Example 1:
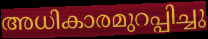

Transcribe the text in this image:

അധികാരമുറപ്പിച്ചു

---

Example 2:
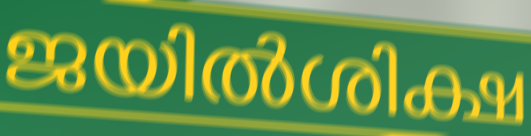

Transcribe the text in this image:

ജയിൽശിക്ഷ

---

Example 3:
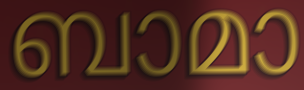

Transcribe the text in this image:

ബാമാ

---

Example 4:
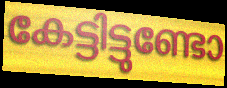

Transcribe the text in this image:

കേട്ടിട്ടുണ്ടോ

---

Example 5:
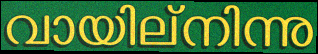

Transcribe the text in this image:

വായില്നിന്നു